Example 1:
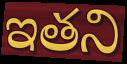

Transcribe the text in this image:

ఇతని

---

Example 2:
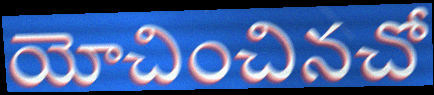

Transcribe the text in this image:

యోచించినచో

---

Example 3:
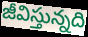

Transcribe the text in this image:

జీవిస్తున్నది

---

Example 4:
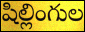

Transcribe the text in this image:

షిల్లింగుల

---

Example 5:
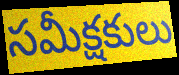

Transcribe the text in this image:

సమీక్షకులు